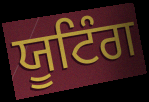
ਯੂਟਿੰਗ